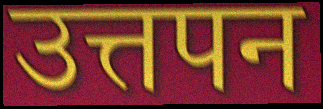
उत्तपन